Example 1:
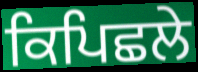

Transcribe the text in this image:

ਕਿਪਿਛਲੇ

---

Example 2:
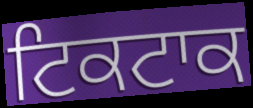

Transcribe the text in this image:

ਟਿਕਟਾਕ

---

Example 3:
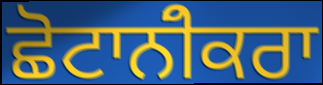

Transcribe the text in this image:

ਛੋਟਾਨੀੱਕਰਾ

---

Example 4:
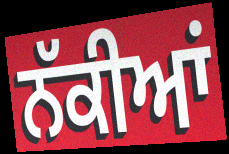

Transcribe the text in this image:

ਨੱਕੀਆਂ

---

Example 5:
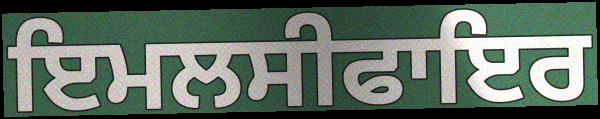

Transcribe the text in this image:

ਇਮਲਸੀਫਾਇਰ